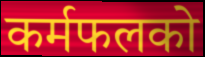
कर्मफलको